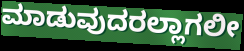
ಮಾಡುವುದರಲ್ಲಾಗಲೀ